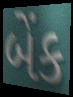
બેંક